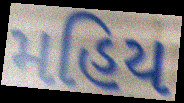
મહિય